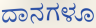
ದಾನಗಳೂ